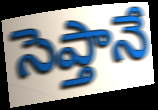
సెప్తానే